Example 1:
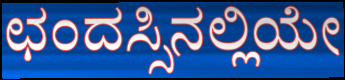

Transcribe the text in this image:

ಛಂದಸ್ಸಿನಲ್ಲಿಯೇ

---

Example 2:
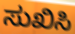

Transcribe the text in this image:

ಸುಖಿಸಿ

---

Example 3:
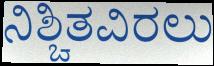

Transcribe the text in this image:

ನಿಶ್ಚಿತವಿರಲು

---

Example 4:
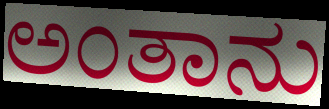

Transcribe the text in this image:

ಅಂತಾನು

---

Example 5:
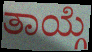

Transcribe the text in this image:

ತಾಯ್ಗೆ